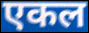
एकल